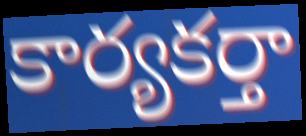
కార్యకర్తా